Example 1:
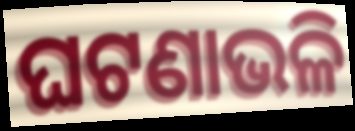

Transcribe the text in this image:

ଘଟଣାଭଳି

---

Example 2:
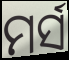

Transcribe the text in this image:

ମର୍ସ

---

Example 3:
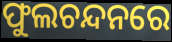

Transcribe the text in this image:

ଫୁଲଚନ୍ଦନରେ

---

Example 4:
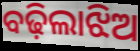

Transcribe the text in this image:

ବଢ଼ିଲାଝିଅ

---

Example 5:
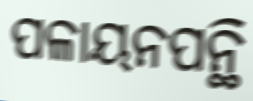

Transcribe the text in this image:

ପଳାୟନପନ୍ଥି